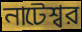
নাটেশ্বর